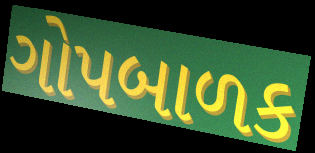
ગોપબાળક